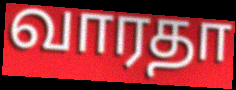
வாரதா